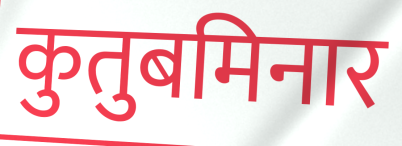
कुतुबमिनार